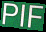
PIF